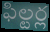
ఫిల్టర్ల